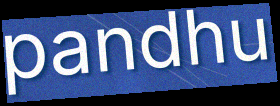
pandhu